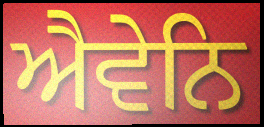
ਐਵੇਨਿ